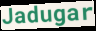
Jadugar